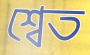
শ্বেত